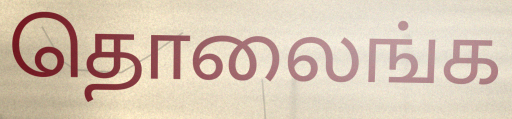
தொலைங்க